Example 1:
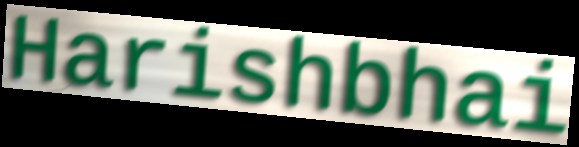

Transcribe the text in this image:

Harishbhai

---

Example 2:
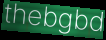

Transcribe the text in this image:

thebgbd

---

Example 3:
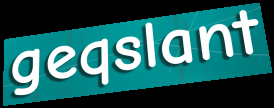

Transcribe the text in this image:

geqslant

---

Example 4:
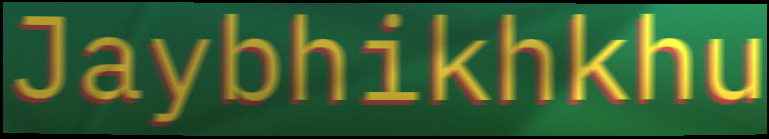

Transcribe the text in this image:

Jaybhikhkhu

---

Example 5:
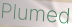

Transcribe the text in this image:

Plumed